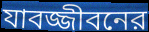
যাবজ্জীবনের